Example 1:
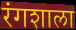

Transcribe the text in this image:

रंगशाला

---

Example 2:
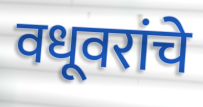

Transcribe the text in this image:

वधूवरांचे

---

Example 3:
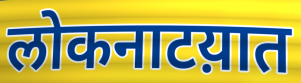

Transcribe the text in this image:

लोकनाटय़ात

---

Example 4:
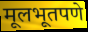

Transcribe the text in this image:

मूलभूतपणे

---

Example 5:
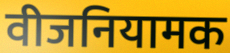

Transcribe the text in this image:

वीजनियामक